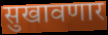
सुखावणार